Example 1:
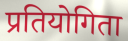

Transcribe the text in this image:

प्रतियोगिता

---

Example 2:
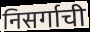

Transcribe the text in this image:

निसर्गाची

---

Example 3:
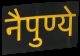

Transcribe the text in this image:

नैपुण्ये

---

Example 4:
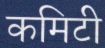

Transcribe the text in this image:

कमिटी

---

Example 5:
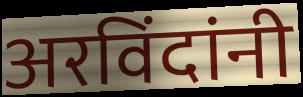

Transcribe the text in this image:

अरविंदांनी